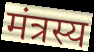
मंत्रस्य